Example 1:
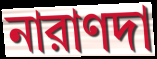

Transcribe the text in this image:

নারাণদা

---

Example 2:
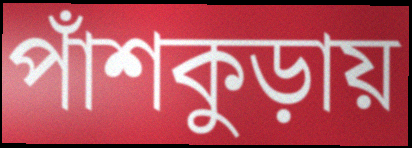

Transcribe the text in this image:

পাঁশকুড়ায়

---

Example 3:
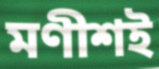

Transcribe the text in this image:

মণীশই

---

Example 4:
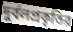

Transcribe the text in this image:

দুর্বলপ্রকৃতির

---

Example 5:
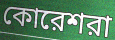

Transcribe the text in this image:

কোরেশরা